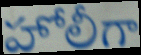
హోలీగా